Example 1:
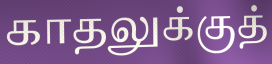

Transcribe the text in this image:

காதலுக்குத்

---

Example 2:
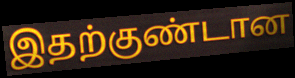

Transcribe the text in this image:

இதற்குண்டான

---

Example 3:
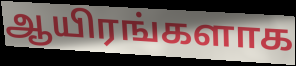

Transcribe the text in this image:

ஆயிரங்களாக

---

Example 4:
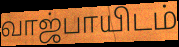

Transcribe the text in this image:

வாஜ்பாயிடம்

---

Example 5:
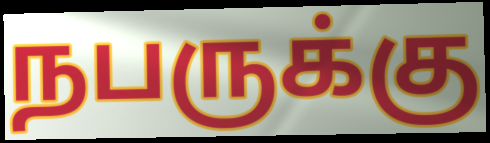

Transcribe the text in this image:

நபருக்கு